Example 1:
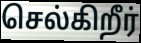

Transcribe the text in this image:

செல்கிறீர்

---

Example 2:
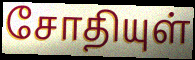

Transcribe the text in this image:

சோதியுள்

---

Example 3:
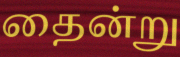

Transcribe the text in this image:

தைன்று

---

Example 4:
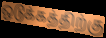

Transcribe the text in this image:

ஒடுக்கத்திற்கு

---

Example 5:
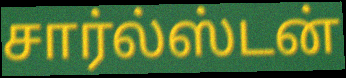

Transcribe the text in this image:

சார்ல்ஸ்டன்